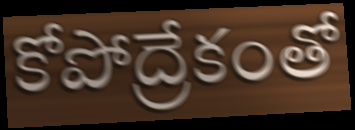
కోపోద్రేకంతో